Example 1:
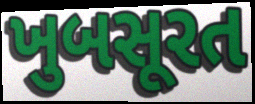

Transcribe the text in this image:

ખુબસૂરત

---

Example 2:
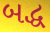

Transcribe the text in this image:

બદ્ધ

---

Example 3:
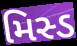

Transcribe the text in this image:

મિસ્ડ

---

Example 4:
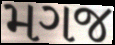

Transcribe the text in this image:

મગજ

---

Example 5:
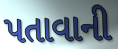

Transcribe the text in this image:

પતાવાની